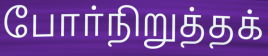
போர்நிறுத்தக்